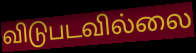
விடுபடவில்லை